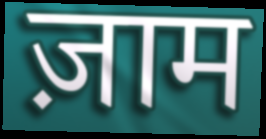
ज़ाम